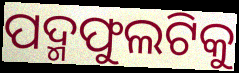
ପଦ୍ମଫୁଲଟିକୁ